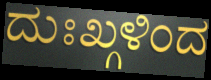
ದುಃಖ್ಗಳಿಂದ